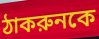
ঠাকরুনকে